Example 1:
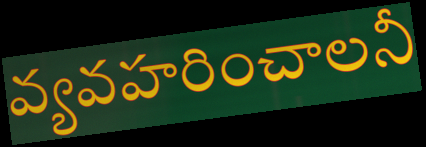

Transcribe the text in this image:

వ్యవహరించాలనీ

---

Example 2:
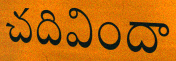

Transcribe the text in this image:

చదివిందా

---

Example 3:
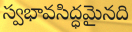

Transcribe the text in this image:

స్వభావసిద్ధమైనది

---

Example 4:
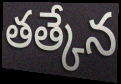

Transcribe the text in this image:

తత్కేన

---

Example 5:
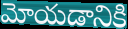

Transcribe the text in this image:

మోయడానికి